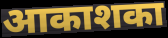
आकाशका